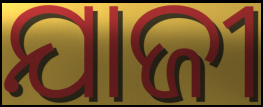
ଯାଜୀ